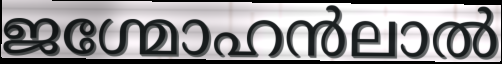
ജഗ്മോഹൻലാൽ